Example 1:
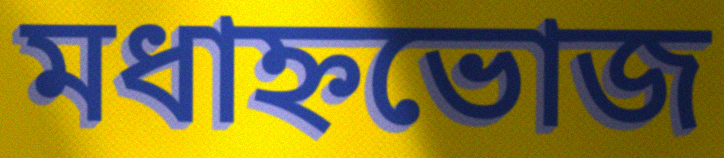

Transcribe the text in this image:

মধাহ্নভোজ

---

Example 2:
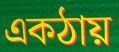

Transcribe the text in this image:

একঠায়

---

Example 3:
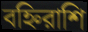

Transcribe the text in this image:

বহ্নিরাশি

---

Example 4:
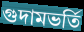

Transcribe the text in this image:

গুদামভর্তি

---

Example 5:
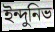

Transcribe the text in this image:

ইন্দুনিভ